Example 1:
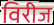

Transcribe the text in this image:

विरीज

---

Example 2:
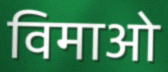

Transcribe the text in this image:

विमाओ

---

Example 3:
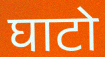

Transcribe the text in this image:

घाटो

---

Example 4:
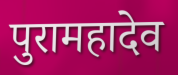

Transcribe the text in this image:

पुरामहादेव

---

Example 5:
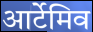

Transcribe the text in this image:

आर्टेमिव